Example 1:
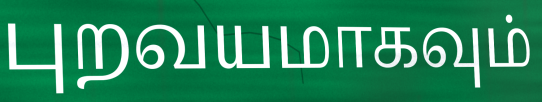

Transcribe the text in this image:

புறவயமாகவும்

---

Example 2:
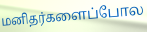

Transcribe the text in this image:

மனிதர்களைப்போல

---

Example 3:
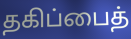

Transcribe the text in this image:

தகிப்பைத்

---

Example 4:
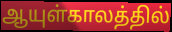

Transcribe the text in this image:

ஆயுள்காலத்தில்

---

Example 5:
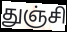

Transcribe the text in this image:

துஞ்சி